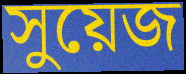
সুয়েজ